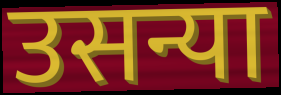
उसन्या